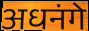
अधनंगे